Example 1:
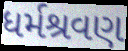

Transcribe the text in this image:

ધર્મશ્રવણ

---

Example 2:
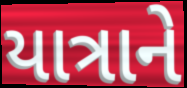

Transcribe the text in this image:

યાત્રાને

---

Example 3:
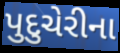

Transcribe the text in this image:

પુદુચેરીના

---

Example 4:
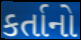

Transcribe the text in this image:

કર્તાનો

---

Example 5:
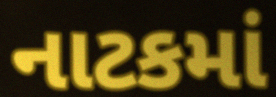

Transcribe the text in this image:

નાટકમાં